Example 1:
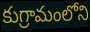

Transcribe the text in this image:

కుగ్రామంలోని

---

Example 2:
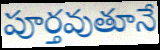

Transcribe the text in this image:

పూర్తవుతూనే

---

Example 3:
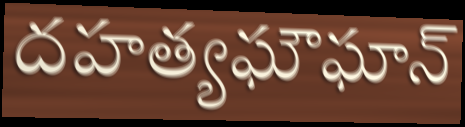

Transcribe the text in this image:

దహత్యఘౌఘాన్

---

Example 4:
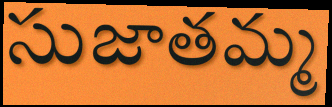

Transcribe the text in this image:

సుజాతమ్మ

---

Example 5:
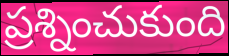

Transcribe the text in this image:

ప్రశ్నించుకుంది